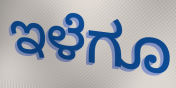
ಇಳೆಗೂ